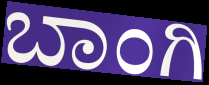
ಬಾಂಗಿ